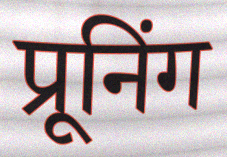
प्रूनिंग